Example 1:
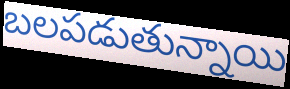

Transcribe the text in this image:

బలపడుతున్నాయి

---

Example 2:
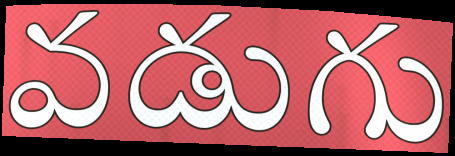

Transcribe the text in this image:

వడుగు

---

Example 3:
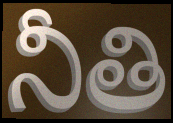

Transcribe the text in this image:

నీతి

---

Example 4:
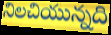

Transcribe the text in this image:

నిలచియున్నది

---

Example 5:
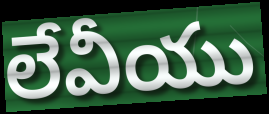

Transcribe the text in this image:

లేవీయు